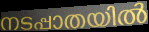
നടപ്പാതയിൽ